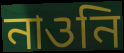
নাওনি